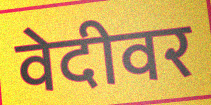
वेदीवर